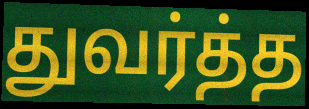
துவர்த்த